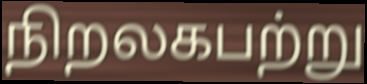
நிறலகபற்று